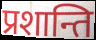
प्रशान्ति